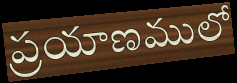
ప్రయాణములో